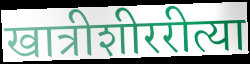
खात्रीशीररीत्या